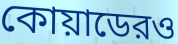
কোয়াডেরও